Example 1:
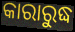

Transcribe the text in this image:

କାରାରୁଦ୍ଧ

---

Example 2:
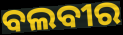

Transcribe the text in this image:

ବଲବୀର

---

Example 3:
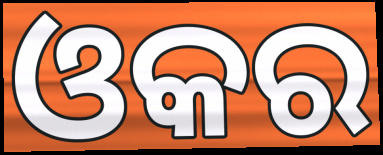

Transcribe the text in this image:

ଓକର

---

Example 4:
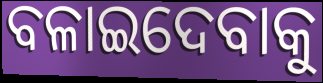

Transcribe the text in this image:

ବଳାଇଦେବାକୁ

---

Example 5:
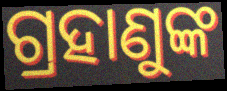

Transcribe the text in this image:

ଗ୍ରହାଣୁଙ୍କ